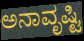
ಅನಾವೃಷ್ಟಿ